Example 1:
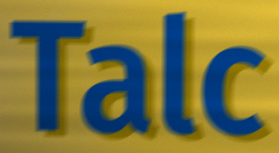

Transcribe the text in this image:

Talc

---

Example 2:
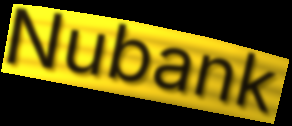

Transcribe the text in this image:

Nubank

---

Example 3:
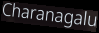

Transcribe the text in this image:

Charanagalu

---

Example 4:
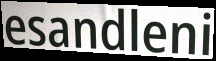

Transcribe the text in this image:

esandleni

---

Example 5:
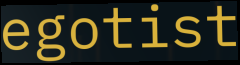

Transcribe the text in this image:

egotist